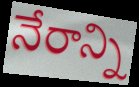
నేరాన్ని